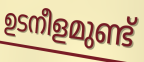
ഉടനീളമുണ്ട്